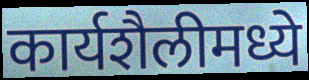
कार्यशैलीमध्ये